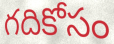
గదికోసం